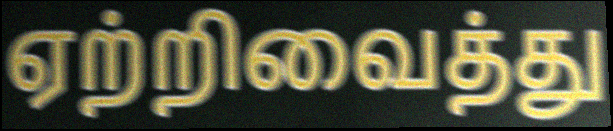
ஏற்றிவைத்து